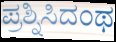
ಪ್ರಶ್ನಿಸಿದಂಥ